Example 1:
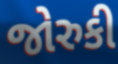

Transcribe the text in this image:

જોરુકી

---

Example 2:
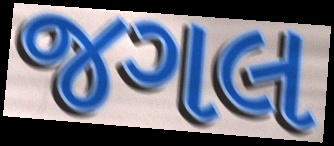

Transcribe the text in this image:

જગલ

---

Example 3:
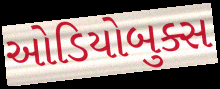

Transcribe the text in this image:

ઓડિયોબુક્સ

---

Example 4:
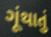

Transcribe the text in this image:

ગૂંથાતું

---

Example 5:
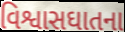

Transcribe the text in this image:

વિશ્વાસઘાતના